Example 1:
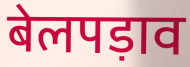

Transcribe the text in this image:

बेलपड़ाव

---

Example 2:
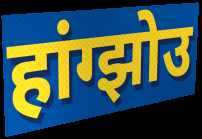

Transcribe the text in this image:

हांग्झोउ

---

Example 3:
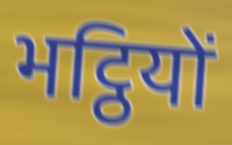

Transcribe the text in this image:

भट्ठियों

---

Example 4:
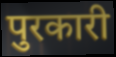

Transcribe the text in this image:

पुरकारी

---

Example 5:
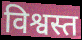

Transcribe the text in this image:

विश्वस्त